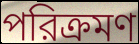
পরিক্রমণ